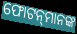
ଫୋଟନ୍‍ମାନଙ୍କ